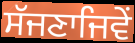
ਸੱਜਣਾਜਿਵੇਂ